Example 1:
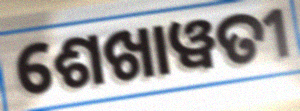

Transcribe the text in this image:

ଶେଖାୱତୀ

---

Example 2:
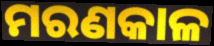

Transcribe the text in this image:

ମରଣକାଳ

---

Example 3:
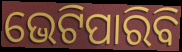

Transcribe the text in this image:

ଭେଟିପାରିବି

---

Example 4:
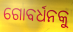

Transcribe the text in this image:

ଗୋବର୍ଧନକୁ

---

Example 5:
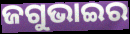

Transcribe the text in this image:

ଜଗୁଭାଇର